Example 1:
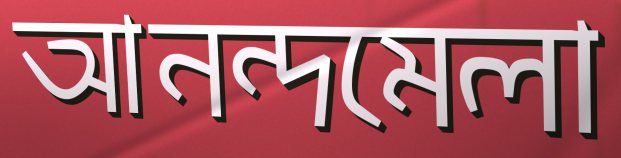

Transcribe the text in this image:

আনন্দমেলা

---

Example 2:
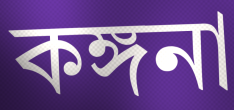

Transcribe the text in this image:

কঙ্গনা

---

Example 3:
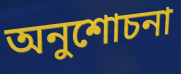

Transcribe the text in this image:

অনুশোচনা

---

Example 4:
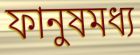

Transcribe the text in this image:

ফানুষমধ্য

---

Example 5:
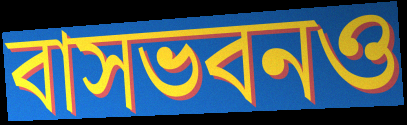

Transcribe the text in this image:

বাসভবনও